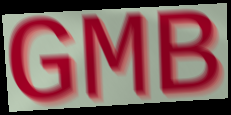
GMB